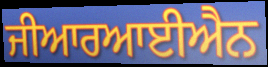
ਜੀਆਰਆਈਐਨ